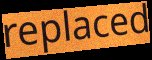
replaced